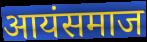
आयंसमाज